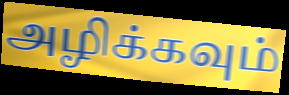
அழிக்கவும்